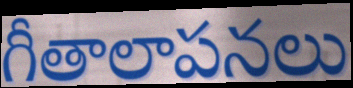
గీతాలాపనలు